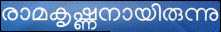
രാമകൃഷ്ണനായിരുന്നു